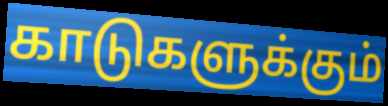
காடுகளுக்கும்